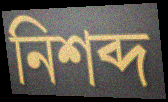
নিশব্দ